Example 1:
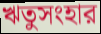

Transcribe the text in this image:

ঋতুসংহার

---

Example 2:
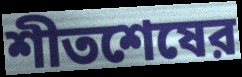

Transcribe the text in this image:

শীতশেষের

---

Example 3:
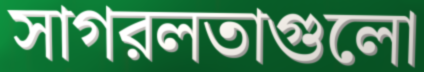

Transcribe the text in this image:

সাগরলতাগুলো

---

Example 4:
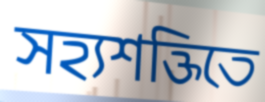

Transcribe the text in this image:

সহ্যশক্তিতে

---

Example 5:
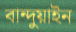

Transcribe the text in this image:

বান্দুয়াইন